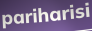
pariharisi